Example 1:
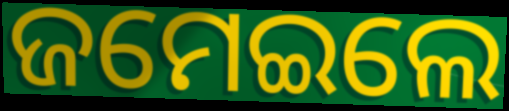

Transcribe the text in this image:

ଜମେଇଲେ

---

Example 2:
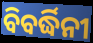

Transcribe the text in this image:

ବିବର୍ଦ୍ଧିନୀ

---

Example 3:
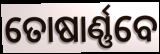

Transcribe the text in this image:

ତୋଷାର୍ଣ୍ଣବେ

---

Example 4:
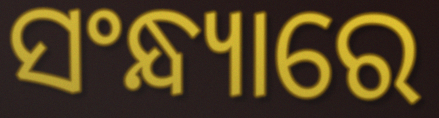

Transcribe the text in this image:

ସଂନ୍ଧ୍ଯାରେ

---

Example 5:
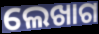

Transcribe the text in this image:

ଲେଖାଗ